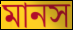
মানস